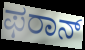
ಫರಾನ್